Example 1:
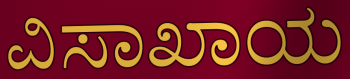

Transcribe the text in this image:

ವಿಸಾಖಾಯ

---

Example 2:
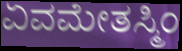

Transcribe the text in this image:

ಏವಮೇತಸ್ಮಿಂ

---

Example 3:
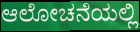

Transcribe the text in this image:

ಆಲೋಚನೆಯಲ್ಲಿ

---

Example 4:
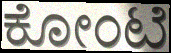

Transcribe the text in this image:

ಕೋಂಟೆ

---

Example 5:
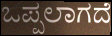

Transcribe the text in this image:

ಒಪ್ಪಲಾಗದೆ